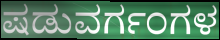
ಷಡುವರ್ಗಂಗಳ